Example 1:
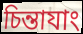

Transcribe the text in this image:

চিন্তাযাং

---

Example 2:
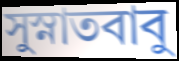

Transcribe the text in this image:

সুস্নাতবাবু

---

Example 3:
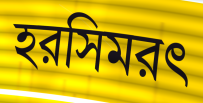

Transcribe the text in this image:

হরসিমরৎ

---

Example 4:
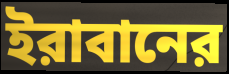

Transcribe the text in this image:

ইরাবানের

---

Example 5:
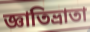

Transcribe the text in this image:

জ্ঞাতিভ্রাতা